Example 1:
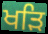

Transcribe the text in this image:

ਖੜਿ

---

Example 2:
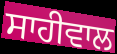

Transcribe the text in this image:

ਸਾਹੀਵਾਲ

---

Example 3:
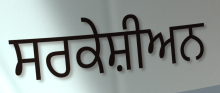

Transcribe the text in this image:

ਸਰਕੇਸ਼ੀਅਨ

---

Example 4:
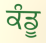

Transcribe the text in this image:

ਕੰਡੂ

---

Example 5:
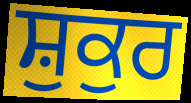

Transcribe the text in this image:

ਸ਼ੁਕੁਰ